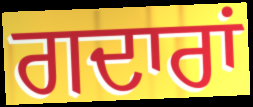
ਗਦਾਰਾਂ